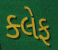
ક્લેફ